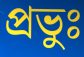
প্রভুঃ